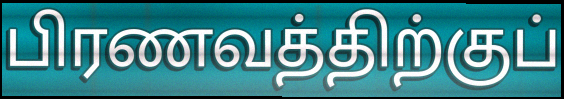
பிரணவத்திற்குப்